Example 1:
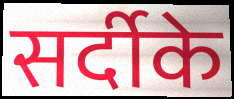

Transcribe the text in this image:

सर्दीके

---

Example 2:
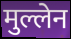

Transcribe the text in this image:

मुल्लेन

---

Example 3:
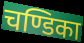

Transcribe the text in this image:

चण्डिका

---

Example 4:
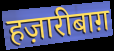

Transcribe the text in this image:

हज़ारीबाग़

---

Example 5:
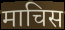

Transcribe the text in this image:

माचिस